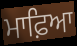
ਮਾਫ਼ਿਆ